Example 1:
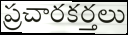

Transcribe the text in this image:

ప్రచారకర్తలు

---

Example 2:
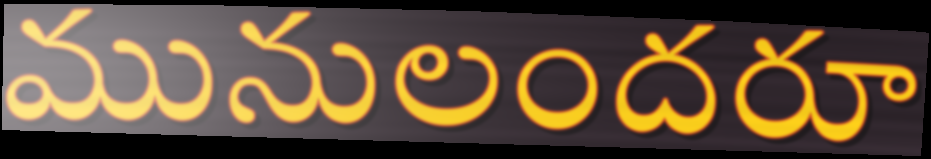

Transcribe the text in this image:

మునులందరూ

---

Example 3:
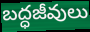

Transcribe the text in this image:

బద్ధజీవులు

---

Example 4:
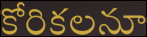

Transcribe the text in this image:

కోరికలనూ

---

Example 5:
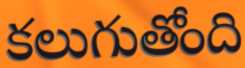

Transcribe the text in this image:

కలుగుతోంది